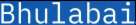
Bhulabai